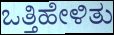
ಒತ್ತಿಹೇಳಿತು